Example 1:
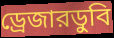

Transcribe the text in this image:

ড্রেজারডুবি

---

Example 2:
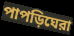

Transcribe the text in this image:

পাপড়িঘেরা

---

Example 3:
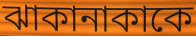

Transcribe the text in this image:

ঝাকানাকাকে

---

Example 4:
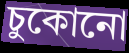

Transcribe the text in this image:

চুকোনো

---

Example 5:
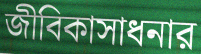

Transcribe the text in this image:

জীবিকাসাধনার